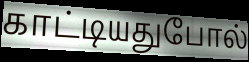
காட்டியதுபோல்